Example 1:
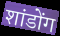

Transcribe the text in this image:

शांडोंग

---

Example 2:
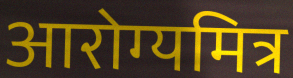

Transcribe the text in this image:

आरोग्यमित्र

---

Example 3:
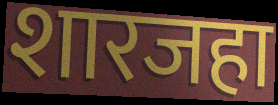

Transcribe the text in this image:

शारजहा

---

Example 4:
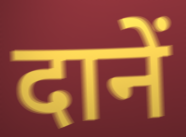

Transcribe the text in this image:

दानें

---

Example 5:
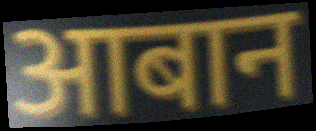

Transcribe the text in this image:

आबान